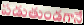
పడుతుండగానే